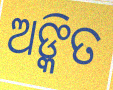
ଅଙ୍କିତ